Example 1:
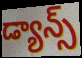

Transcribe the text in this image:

డ్యాన్స్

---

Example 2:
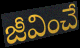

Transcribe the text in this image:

జీవించే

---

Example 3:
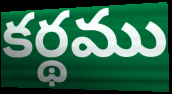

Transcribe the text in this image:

కర్థము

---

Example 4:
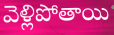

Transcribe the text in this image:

వెళ్లిపోతాయి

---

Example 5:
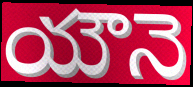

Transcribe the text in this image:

యౌనె